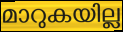
മാറുകയില്ല